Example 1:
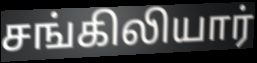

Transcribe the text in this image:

சங்கிலியார்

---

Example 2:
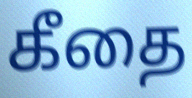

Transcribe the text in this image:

கீதை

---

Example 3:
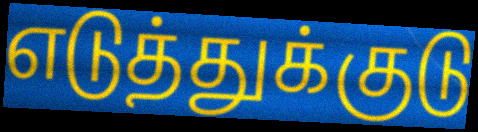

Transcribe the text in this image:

எடுத்துக்குடு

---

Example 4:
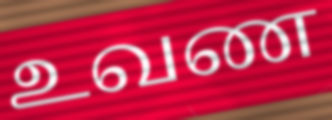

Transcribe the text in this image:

உவண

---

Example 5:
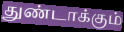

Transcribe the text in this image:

துண்டாக்கும்